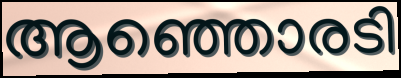
ആഞ്ഞൊരടി